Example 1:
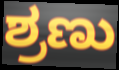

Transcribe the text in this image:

ಶ್ರಣು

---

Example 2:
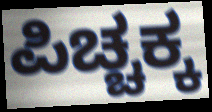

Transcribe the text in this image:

ಪಿಚ್ಚಕ್ಕ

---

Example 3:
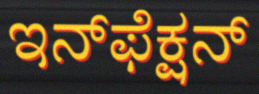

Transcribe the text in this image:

ಇನ್‌ಫೆಕ್ಷನ್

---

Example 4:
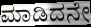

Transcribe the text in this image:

ಮಾಡಿದನೇ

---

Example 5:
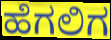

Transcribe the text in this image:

ಹೆಗಲಿಗ